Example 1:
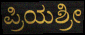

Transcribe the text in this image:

ಪ್ರಿಯಶ್ರೀ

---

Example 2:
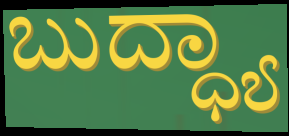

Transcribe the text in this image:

ಬುದ್ಧ್ಯಾ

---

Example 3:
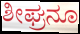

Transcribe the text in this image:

ಶೀಘ್ರನೂ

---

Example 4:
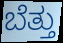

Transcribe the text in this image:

ಬೆತ್ತು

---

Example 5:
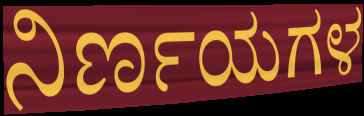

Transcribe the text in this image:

ನಿರ್ಣಯಗಳ